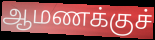
ஆமணக்குச்